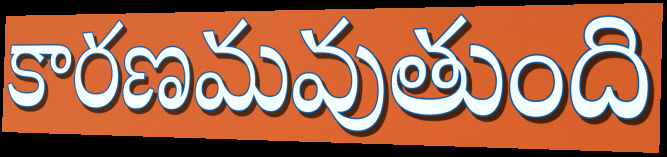
కారణమవుతుంది